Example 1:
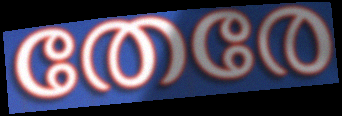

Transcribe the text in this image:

തേരേ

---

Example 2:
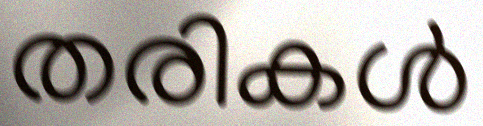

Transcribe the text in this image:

തരികൾ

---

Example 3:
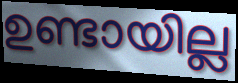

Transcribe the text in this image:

ഉണ്ടായില്ല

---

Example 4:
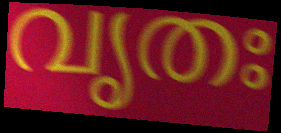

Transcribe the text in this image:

വൃതഃ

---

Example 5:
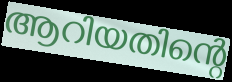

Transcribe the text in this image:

ആറിയതിന്റെ